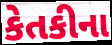
કેતકીના